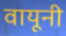
वायूनी